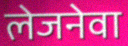
लेजनेवा